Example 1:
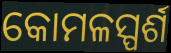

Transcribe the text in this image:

କୋମଳସ୍ପର୍ଶ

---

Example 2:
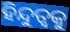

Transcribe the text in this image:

ହିନ୍ଦୁତ୍ୱକୁ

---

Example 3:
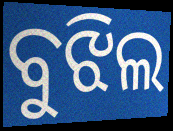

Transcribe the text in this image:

ବୁଝିଲ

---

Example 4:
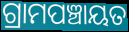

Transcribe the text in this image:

ଗ୍ରାମପଞ୍ଚାୟତ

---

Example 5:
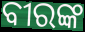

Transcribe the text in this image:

ବୀରଙ୍କ